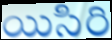
యిసిరి